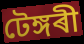
টেঙ্গৰী